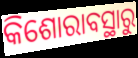
କିଶୋରାବସ୍ଥାରୁ